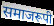
समाजरूपी